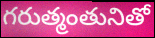
గరుత్మంతునితో